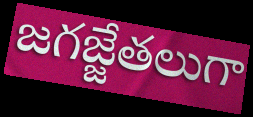
జగజ్జేతలుగా